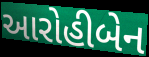
આરોહીબેન